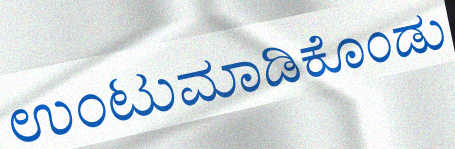
ಉಂಟುಮಾಡಿಕೊಂಡು